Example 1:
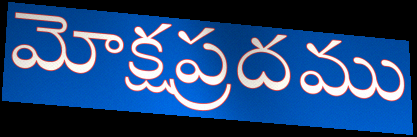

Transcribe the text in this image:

మోక్షప్రదము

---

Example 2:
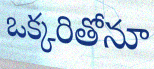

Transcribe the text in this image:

ఒక్కరితోనూ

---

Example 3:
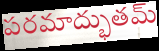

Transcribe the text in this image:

పరమాద్భుతమ్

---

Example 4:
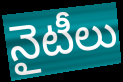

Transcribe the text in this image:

నైటీలు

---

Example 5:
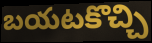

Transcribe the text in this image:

బయటకొచ్చి